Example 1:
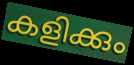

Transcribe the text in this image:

കളിക്കും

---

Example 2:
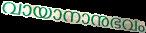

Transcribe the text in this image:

വായാനാനുഭവം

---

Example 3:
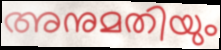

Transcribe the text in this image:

അനുമതിയും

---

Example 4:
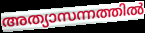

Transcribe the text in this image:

അത്യാസന്നത്തിൽ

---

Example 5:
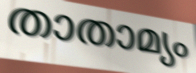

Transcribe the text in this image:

താതാമ്യം